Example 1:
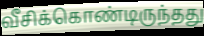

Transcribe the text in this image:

வீசிக்கொண்டிருந்தது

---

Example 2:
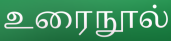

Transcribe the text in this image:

உரைநூல்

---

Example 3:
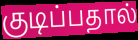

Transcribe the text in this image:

குடிப்பதால்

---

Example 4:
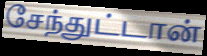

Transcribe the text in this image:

சேந்துட்டான்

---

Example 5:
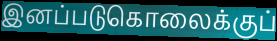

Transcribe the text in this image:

இனப்படுகொலைக்குப்